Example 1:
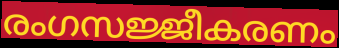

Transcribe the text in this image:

രംഗസജ്ജീകരണം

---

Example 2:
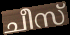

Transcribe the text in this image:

ചീസ്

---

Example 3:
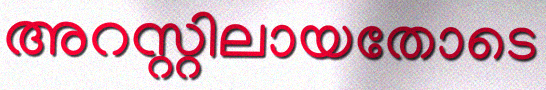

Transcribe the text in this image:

അറസ്റ്റിലായതോടെ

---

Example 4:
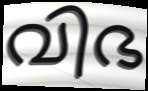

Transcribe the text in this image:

വിഭ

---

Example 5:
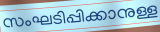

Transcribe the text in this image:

സംഘടിപ്പിക്കാനുള്ള